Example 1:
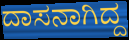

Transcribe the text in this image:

ದಾಸನಾಗಿದ್ದ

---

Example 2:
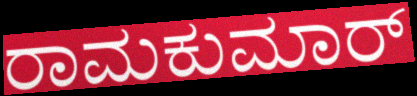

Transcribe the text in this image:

ರಾಮಕುಮಾರ್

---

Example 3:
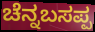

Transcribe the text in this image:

ಚೆನ್ನಬಸಪ್ಪ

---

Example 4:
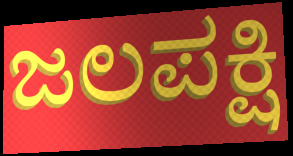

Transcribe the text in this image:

ಜಲಪಕ್ಷಿ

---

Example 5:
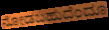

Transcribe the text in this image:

ನೋಡಬಹುದೆಂದೂ